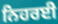
ਨਿਹਰਈ